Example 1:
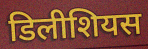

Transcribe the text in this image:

डिलीशियस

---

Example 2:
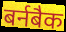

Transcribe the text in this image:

बर्नबैक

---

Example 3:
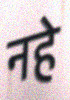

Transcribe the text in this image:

नहे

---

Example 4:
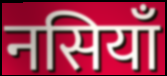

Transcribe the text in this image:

नसियाँ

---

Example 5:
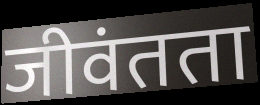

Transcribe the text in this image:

जीवंतता